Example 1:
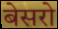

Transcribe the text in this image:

बेसरो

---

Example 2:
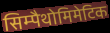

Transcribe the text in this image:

सिम्पैथोमिमेटिक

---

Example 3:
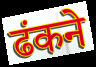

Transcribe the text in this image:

ढंकने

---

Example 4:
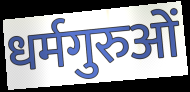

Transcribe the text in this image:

धर्मगुरुओं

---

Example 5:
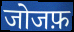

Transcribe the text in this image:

जोजफ़